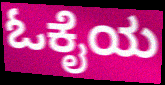
ಓಕೈಯ